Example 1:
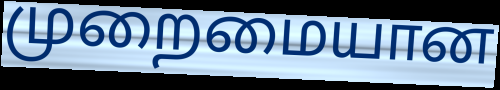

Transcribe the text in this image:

முறைமையான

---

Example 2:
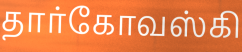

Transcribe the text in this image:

தார்கோவஸ்கி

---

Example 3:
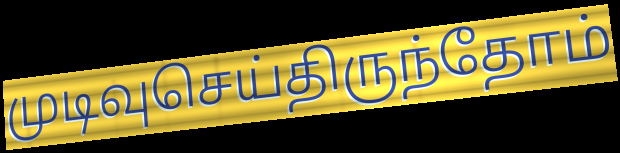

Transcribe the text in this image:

முடிவுசெய்திருந்தோம்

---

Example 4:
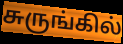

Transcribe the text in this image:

சுருங்கில்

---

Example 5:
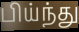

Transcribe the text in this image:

பிய்ந்து